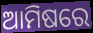
ଆମିଷରେ